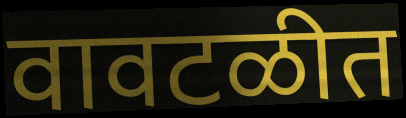
वावटळीत